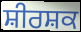
ਸ਼ੀਰਸ਼ਕ